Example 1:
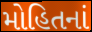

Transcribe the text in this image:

મોહિતનાં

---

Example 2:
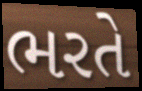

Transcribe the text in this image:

ભરતે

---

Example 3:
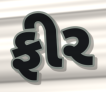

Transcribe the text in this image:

ફીર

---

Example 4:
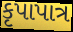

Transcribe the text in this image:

કૃપાપાત્ર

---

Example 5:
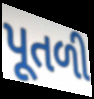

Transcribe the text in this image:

પૂતળી